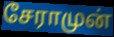
சேராமுன்